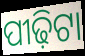
ପୀଢ଼ିଟା